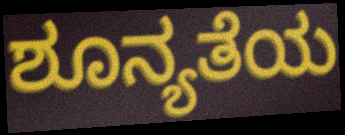
ಶೂನ್ಯತೆಯ